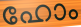
ഹോം